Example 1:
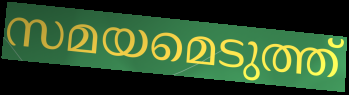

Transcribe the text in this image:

സമയമെടുത്ത്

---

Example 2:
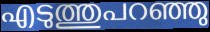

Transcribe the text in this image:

എടുത്തുപറഞ്ഞു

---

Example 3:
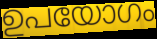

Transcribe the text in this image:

ഉപയോഗം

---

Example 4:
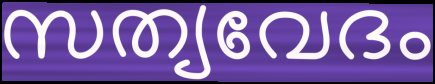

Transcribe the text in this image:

സത്യവേദം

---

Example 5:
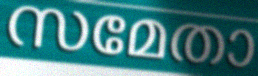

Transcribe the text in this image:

സമേതാ